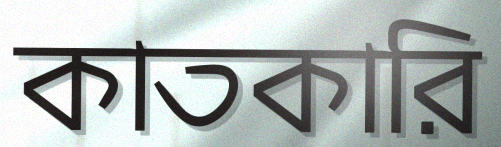
কাতকারি